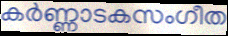
കർണ്ണാടകസംഗീത